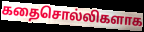
கதைசொல்லிகளாக